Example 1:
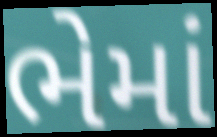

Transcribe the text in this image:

ભેમાં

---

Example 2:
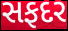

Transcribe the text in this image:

સફદર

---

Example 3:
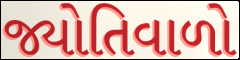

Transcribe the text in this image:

જ્યોતિવાળો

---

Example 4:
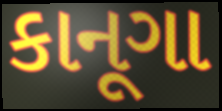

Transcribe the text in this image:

કાનૂગા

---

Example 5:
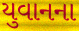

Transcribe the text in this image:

યુવાનના